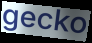
gecko